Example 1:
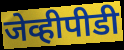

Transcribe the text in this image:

जेव्हीपीडी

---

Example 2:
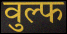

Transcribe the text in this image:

वुल्फ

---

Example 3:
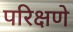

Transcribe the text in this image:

परिक्षणे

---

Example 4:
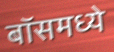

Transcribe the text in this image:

बॉसमध्ये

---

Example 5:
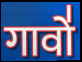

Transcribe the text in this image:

गावो॑